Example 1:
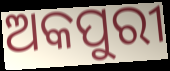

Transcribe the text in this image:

ଅକପୁରୀ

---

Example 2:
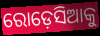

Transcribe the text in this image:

ରୋଡ଼େସିଆକୁ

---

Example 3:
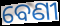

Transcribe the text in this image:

ବେଣୀ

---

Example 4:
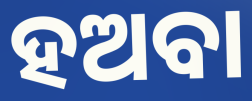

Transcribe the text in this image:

ହଅବା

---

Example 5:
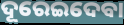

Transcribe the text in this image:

ଦୂରେଇଦେବା